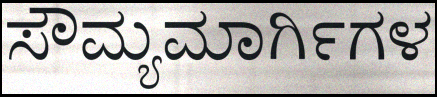
ಸೌಮ್ಯಮಾರ್ಗಿಗಳ